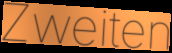
Zweiten